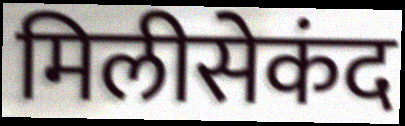
मिलीसेकंद